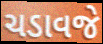
ચડાવજે